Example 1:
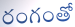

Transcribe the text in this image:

రంగంతో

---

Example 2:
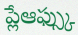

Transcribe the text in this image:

ప్లేఆఫ్స్కు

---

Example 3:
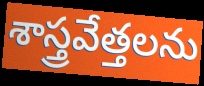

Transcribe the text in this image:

శాస్త్రవేత్తలను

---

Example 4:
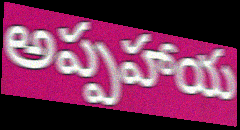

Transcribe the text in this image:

అప్పహాయ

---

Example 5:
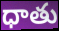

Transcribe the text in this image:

ధాతు